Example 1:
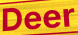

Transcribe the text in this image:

Deer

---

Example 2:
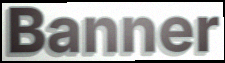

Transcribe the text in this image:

Banner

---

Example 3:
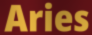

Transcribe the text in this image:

Aries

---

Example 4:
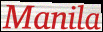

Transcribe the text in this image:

Manila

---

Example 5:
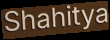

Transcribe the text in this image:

Shahitya